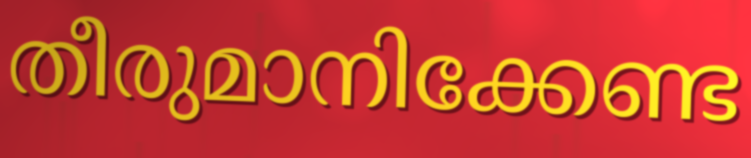
തീരുമാനിക്കേണ്ട